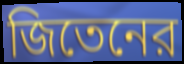
জিতেনের